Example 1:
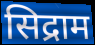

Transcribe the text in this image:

सिद्राम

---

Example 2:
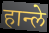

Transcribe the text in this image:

हान्ले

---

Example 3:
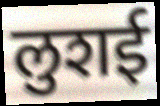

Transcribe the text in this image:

लुशई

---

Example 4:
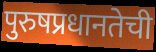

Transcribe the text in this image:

पुरुषप्रधानतेची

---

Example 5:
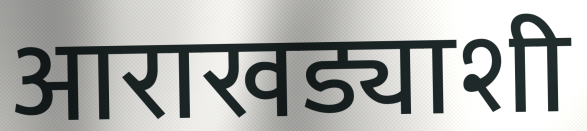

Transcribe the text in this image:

आराखड्याशी